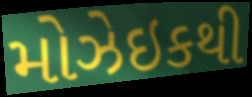
મોઝેઇકથી